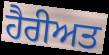
ਹੈਰੀਅਤ